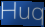
Huq